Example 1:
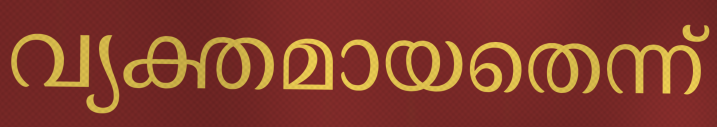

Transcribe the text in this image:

വ്യക്തമായതെന്ന്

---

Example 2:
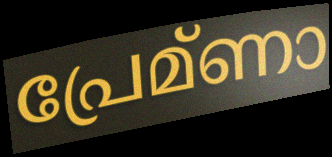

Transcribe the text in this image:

പ്രേമ്ണാ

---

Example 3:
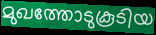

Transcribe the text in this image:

മുഖത്തോടുകൂടിയ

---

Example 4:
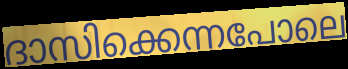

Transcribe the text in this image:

ദാസിക്കെന്നപോലെ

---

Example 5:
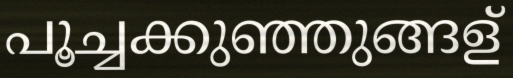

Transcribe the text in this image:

പൂച്ചക്കുഞ്ഞുങ്ങള്